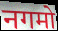
नगमो